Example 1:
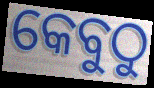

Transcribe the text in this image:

କେବୁଠୁ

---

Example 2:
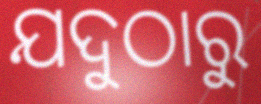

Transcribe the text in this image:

ଯଦୁଠାରୁ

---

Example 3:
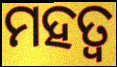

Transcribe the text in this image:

ମହତ୍ବ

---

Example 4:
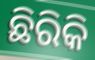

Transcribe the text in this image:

ଛିରିକି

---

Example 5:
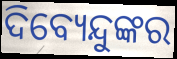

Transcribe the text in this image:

ଦିବ୍ୟେନ୍ଦୁଙ୍କର